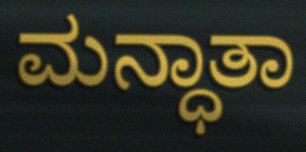
ಮನ್ಧಾತಾ